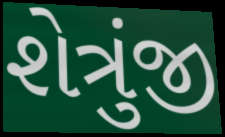
શેત્રુંજી